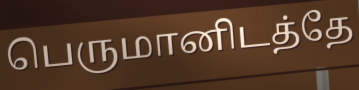
பெருமானிடத்தே